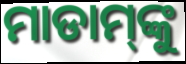
ମାଡାମ୍‌ଙ୍କୁ